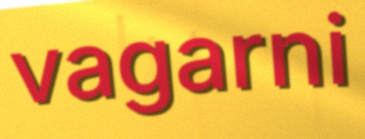
vagarni